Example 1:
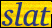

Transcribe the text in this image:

slat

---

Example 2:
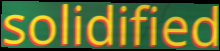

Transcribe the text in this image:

solidified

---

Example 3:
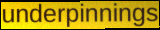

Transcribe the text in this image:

underpinnings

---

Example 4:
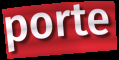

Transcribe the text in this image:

porte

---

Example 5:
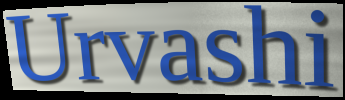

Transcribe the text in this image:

Urvashi